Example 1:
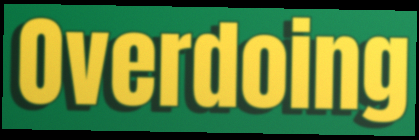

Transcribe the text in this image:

Overdoing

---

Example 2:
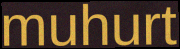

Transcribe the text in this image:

muhurt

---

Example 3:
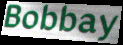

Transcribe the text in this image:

Bobbay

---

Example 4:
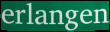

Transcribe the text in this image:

erlangen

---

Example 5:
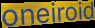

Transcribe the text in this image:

oneiroid